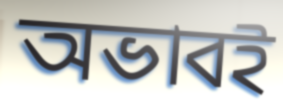
অভাবই